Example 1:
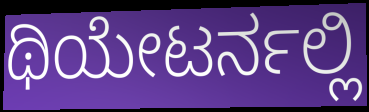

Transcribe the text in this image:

ಥಿಯೇಟರ್ನಲ್ಲಿ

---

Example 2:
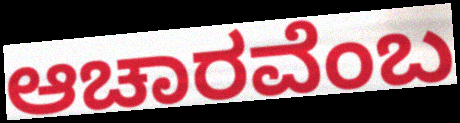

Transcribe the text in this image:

ಆಚಾರವೆಂಬ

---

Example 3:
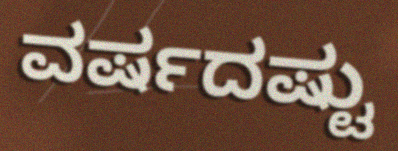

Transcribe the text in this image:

ವರ್ಷದಷ್ಟು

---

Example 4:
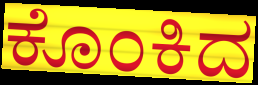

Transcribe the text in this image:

ಕೊಂಕಿದ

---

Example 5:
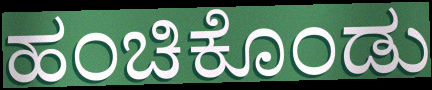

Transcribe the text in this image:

ಹಂಚಿಕೊಂಡು